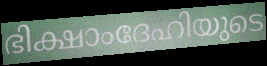
ഭിക്ഷാംദേഹിയുടെ